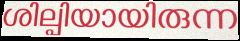
ശില്പിയായിരുന്ന